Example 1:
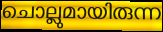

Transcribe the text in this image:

ചൊല്ലുമായിരുന്ന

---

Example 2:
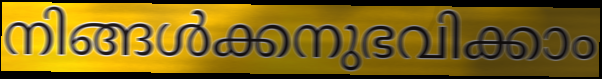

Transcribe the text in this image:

നിങ്ങൾക്കനുഭവിക്കാം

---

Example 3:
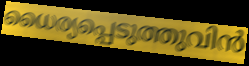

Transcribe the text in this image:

ധൈര്യപ്പെടുത്തുവിൻ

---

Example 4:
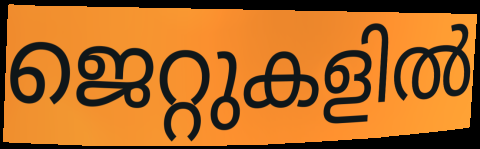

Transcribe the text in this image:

ജെറ്റുകളിൽ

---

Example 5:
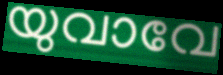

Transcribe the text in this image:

യുവാവേ